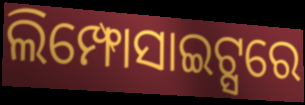
ଲିମ୍ଫୋସାଇଟ୍ସରେ